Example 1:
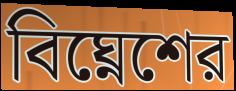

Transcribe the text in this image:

বিঘ্নেশের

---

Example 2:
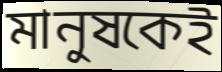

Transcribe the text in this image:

মানুষকেই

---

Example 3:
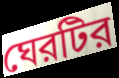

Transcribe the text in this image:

ঘেরটির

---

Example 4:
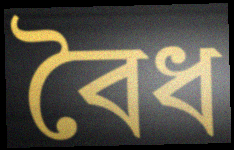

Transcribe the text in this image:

বৈধ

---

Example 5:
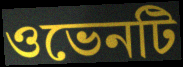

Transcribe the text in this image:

ওভেনটি